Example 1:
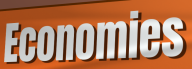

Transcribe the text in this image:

Economies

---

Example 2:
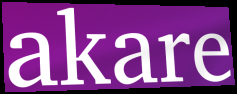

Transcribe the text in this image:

akare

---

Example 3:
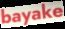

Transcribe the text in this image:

bayake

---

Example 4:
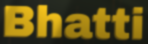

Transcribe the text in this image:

Bhatti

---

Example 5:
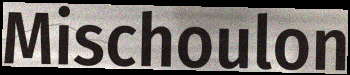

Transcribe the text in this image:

Mischoulon